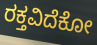
ರಕ್ತವಿದೆಕೋ